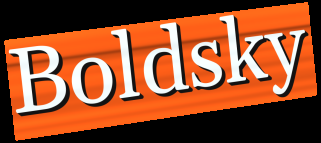
Boldsky